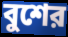
বুশের